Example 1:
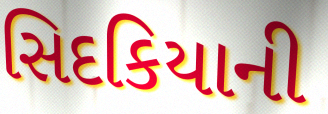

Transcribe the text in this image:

સિદકિયાની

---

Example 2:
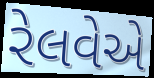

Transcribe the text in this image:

રેલવેએ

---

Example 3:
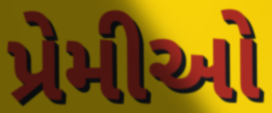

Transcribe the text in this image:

પ્રેમીઓ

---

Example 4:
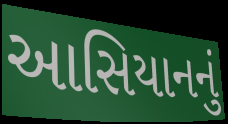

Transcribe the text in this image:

આસિયાનનું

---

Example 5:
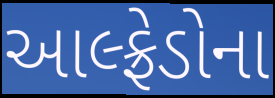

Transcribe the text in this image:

આલ્ફ્રેડોના